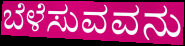
ಬೆಳೆಸುವವನು